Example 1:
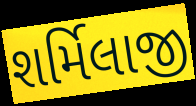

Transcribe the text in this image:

શર્મિલાજી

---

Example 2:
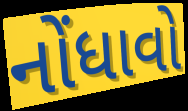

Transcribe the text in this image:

નોંધાવો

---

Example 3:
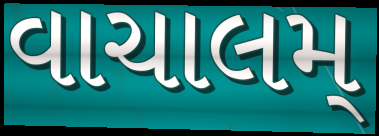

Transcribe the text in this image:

વાચાલમ્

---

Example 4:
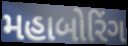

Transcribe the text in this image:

મહાબોરિંગ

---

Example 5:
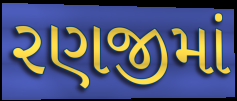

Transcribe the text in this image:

રણજીમાં